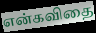
என்கவிதை